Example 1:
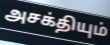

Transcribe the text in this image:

அசக்தியும்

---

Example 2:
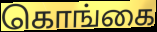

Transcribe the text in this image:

கொங்கை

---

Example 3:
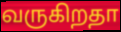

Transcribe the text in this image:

வருகிறதா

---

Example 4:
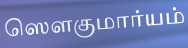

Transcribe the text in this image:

ஸௌகுமார்யம்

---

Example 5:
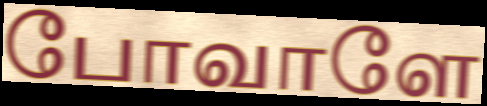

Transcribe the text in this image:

போவாளே